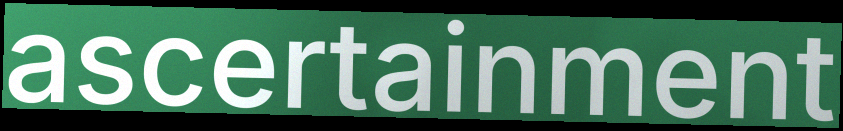
ascertainment